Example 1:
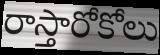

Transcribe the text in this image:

రాస్తారోకోలు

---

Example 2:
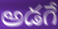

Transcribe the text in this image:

అడగే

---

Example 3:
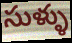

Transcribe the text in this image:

సుళ్ళు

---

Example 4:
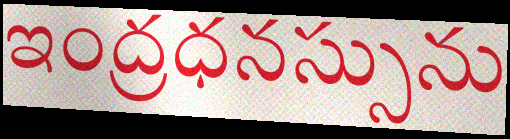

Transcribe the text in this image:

ఇంద్రధనస్సును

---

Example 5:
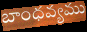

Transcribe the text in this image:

బాంధవ్యము